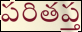
పరితప్త